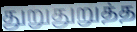
துறுதுறுத்த